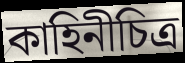
কাহিনীচিত্র